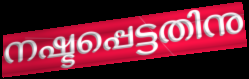
നഷ്ടപ്പെട്ടതിനു